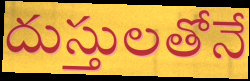
దుస్తులతోనే